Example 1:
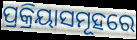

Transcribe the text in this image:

ପ୍ରକ୍ରିୟାସମୂହରେ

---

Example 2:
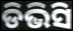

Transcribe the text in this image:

ଡିଭିସି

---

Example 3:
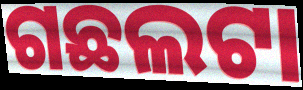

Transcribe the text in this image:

ଗଛଲଟା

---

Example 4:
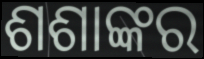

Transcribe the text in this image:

ଶଶାଙ୍କର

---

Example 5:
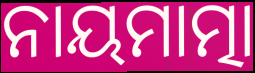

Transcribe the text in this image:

ନାୟମାତ୍ମା